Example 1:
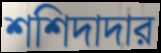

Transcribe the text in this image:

শশিদাদার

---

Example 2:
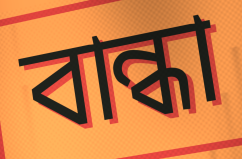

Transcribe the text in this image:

বান্ধা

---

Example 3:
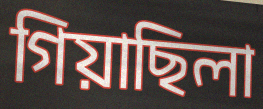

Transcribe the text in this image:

গিয়াছিলা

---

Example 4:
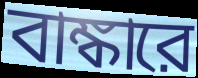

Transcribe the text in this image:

বাঙ্কারে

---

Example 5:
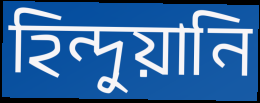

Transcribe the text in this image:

হিন্দুয়ানি